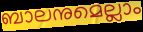
ബാലനുമെല്ലാം